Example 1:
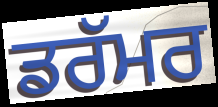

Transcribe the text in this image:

ਡਰੱਮਰ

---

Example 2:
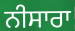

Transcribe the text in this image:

ਨੀਸਾਰਾ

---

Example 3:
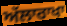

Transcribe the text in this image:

ਅੱਲਾਰਾਖਾ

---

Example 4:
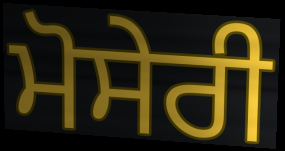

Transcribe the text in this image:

ਮੋਸੇਰੀ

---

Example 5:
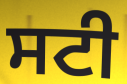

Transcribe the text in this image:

ਸਟੀ